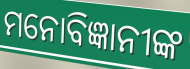
ମନୋବିଜ୍ଞାନୀଙ୍କ